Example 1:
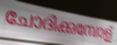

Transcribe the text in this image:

ചോദിക്കുമ്പോള്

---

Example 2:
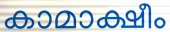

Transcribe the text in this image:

കാമാക്ഷീം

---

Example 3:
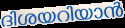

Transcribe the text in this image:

ദിശയറിയാൻ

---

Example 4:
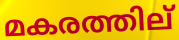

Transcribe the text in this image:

മകരത്തില്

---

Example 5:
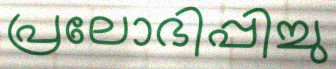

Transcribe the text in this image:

പ്രലോഭിപ്പിച്ചു